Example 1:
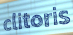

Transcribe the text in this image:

clitoris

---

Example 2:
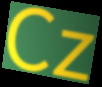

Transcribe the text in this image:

Cz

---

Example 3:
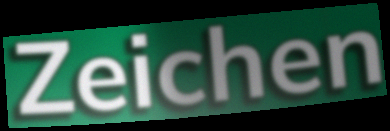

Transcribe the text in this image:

Zeichen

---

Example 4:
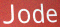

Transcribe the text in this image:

Jode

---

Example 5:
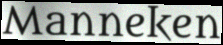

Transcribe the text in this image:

Manneken